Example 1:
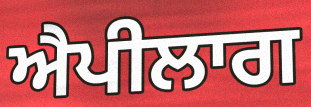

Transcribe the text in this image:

ਐਪੀਲਾਗ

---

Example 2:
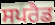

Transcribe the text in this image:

ਸਪਰੈਡ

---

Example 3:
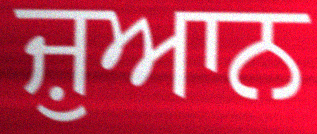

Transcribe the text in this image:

ਜ਼ੁਆਨ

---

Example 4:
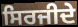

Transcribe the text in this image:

ਸਿਰਜੀਦੇ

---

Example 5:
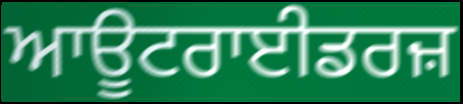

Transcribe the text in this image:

ਆਊਟਰਾਈਡਰਜ਼